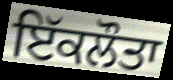
ਇੱਕਲੌਤਾ